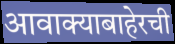
आवाक्याबाहेरची